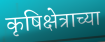
कृषिक्षेत्राच्या